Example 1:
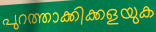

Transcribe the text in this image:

പുറത്താക്കിക്കളയുക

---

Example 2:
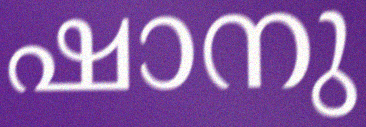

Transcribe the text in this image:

ഷാനു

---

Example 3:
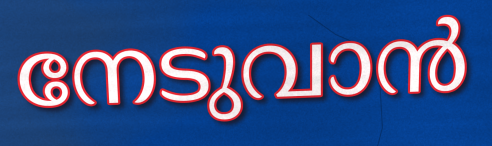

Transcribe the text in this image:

നേടുവാൻ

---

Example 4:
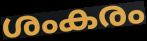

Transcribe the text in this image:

ശംകരം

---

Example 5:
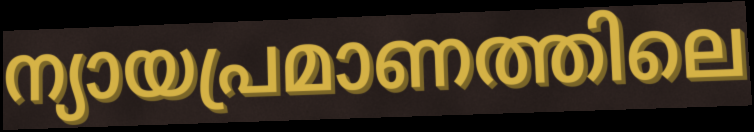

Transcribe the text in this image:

ന്യായപ്രമാണത്തിലെ